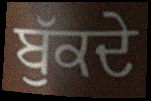
ਬੁੱਕਦੇ